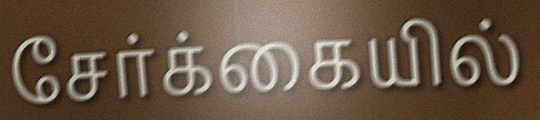
சேர்க்கையில்